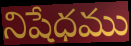
నిషేధము